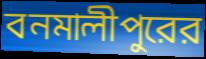
বনমালীপুরের